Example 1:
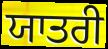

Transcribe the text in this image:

ਯਾਤਰੀ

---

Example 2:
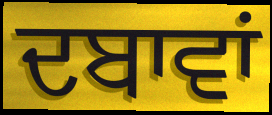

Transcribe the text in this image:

ਦਬਾਵਾਂ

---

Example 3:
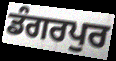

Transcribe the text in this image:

ਡੰਗਰਪੁਰ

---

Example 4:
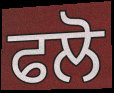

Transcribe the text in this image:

ਫਲੋ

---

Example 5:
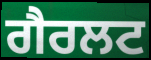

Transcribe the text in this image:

ਗੈਰਲਟ